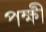
পক্ষী